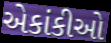
એકાંકીઓ